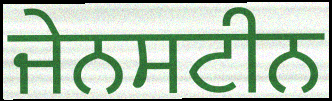
ਜੇਨਸਟੀਨ